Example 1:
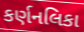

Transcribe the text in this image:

કર્ણનલિકા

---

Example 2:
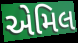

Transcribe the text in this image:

એમિલ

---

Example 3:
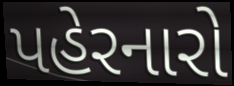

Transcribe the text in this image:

પહેરનારો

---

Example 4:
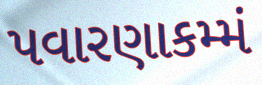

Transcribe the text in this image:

પવારણાકમ્મં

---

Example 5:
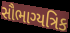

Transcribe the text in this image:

સૌભાગ્યત્રિક